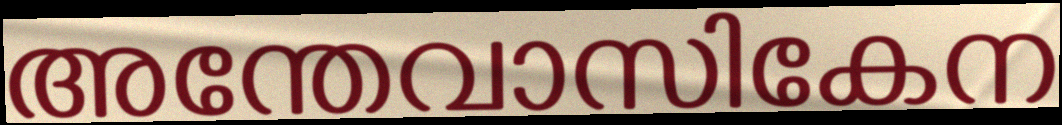
അന്തേവാസികേന